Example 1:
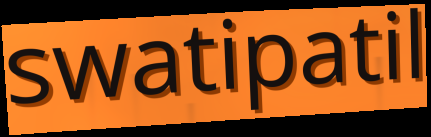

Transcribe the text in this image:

swatipatil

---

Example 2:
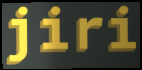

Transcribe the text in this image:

jiri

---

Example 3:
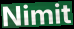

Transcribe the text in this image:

Nimit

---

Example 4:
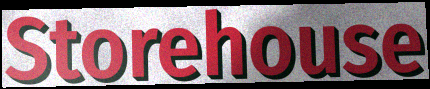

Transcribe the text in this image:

Storehouse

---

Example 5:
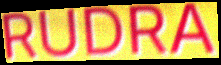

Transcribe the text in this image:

RUDRA